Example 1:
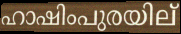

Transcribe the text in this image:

ഹാഷിംപുരയില്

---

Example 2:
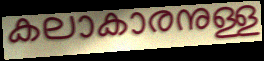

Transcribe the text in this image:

കലാകാരനുള്ള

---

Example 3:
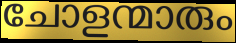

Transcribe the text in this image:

ചോളന്മാരും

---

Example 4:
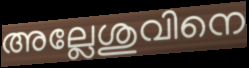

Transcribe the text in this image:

അല്ലേശുവിനെ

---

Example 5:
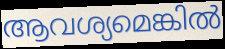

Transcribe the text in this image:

ആവശ്യമെങ്കിൽ